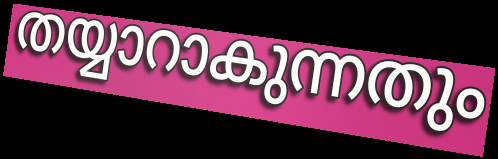
തയ്യാറാകുന്നതും